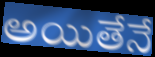
అయితేనే